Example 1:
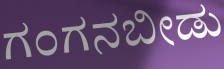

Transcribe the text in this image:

ಗಂಗನಬೀಡು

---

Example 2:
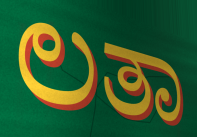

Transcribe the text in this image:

ಲತಾ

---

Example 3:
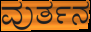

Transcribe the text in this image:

ವುರ್ತನ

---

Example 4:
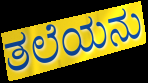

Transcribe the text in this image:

ತಲೆಯನು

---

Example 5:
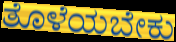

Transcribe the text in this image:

ತೊಳೆಯಬೇಕು